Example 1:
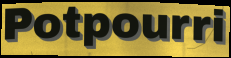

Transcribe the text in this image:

Potpourri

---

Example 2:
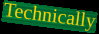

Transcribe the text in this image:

Technically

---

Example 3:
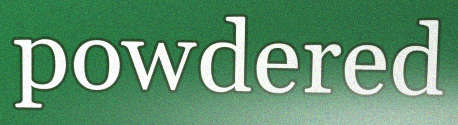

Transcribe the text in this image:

powdered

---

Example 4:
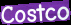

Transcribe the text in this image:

Costco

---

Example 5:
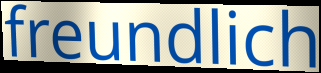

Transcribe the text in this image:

freundlich